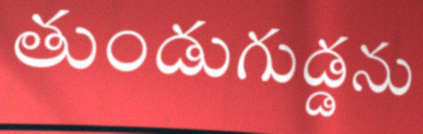
తుండుగుడ్డను